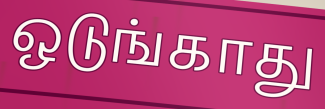
ஒடுங்காது